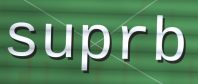
suprb